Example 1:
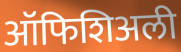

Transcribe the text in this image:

ऑफिशिअली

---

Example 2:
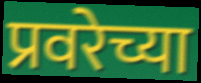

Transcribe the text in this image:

प्रवरेच्या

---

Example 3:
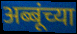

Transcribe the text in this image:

अब्बूंच्या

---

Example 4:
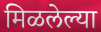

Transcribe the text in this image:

मिळलेल्या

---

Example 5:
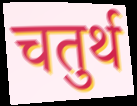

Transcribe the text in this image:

चतुर्थ